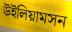
উইলিয়ামসন